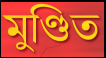
মুণ্ডিত